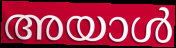
അയാൾ